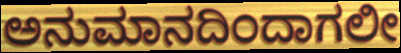
ಅನುಮಾನದಿಂದಾಗಲೀ